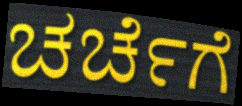
ಚರ್ಚೆಗೆ